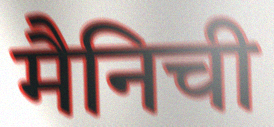
मैनिची